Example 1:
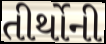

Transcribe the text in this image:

તીર્થોની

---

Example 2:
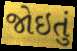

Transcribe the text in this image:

જોઇતું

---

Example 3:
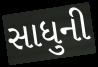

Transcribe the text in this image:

સાધુની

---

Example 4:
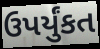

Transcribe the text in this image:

ઉપર્યુંકત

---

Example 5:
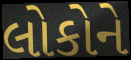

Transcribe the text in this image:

લોકોને